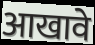
आखावे